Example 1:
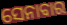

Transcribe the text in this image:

ସେନାବାର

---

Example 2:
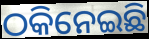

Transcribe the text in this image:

ଠକିନେଇଛି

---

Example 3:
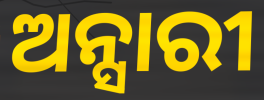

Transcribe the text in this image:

ଅନ୍ସାରୀ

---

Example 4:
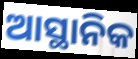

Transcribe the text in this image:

ଆସ୍ଥାନିକ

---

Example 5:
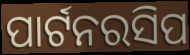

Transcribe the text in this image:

ପାର୍ଟନରସିପ